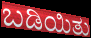
ಬಡಿಯಿತು